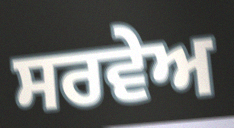
ਸਰਵੇਅ